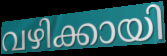
വഴിക്കായി